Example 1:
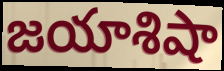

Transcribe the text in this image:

జయాశిషా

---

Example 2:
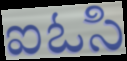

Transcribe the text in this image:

ఐఓసి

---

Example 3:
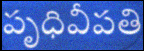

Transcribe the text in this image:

పృధివీపతి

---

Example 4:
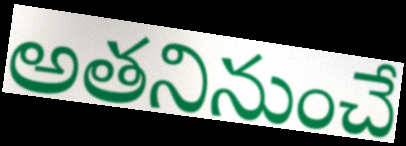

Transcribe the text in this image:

అతనినుంచే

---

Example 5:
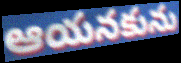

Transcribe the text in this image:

ఆయనకును